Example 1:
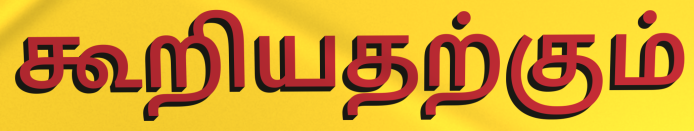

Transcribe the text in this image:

கூறியதற்கும்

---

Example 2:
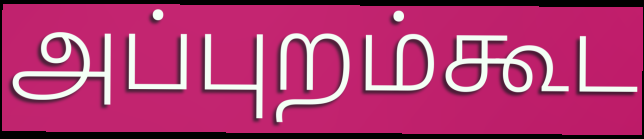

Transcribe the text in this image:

அப்புறம்கூட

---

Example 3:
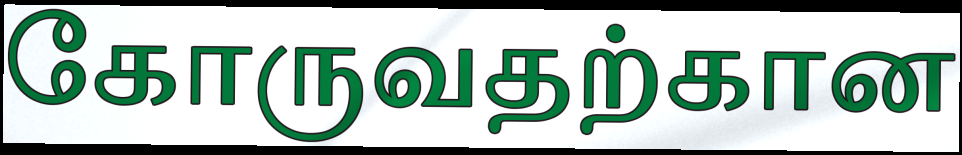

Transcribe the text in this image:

கோருவதற்கான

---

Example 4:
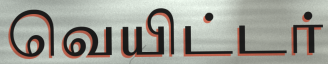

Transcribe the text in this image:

வெயிட்டர்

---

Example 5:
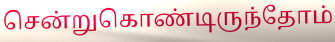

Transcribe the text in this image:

சென்றுகொண்டிருந்தோம்